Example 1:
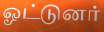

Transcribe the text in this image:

ஓட்டுனர்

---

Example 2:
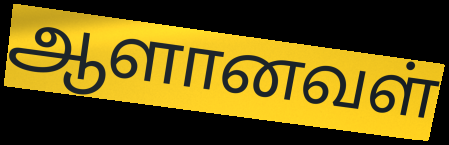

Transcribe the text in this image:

ஆளானவள்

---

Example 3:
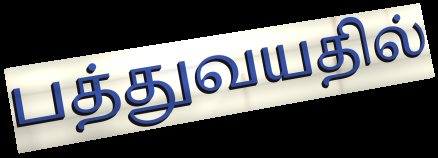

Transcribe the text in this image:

பத்துவயதில்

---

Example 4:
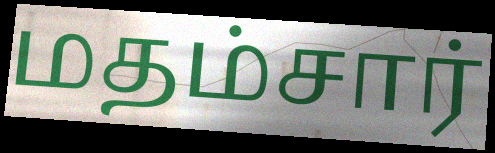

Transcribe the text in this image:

மதம்சார்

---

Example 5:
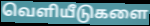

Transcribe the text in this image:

வெளியீடுகளை